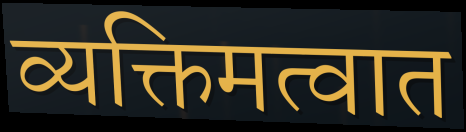
व्यक्तिमत्वात